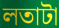
লতাটা